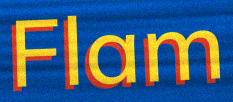
Flam